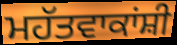
ਮਹੱਤਵਾਕਾਂਸ਼ੀ